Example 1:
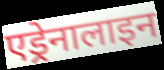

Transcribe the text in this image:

एड्रेनालाइन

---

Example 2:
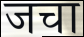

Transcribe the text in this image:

जचा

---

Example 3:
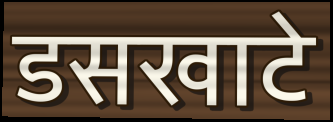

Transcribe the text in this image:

डसखाटे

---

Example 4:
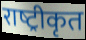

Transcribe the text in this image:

राष्ट्रीकृत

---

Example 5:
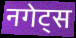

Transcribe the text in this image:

नगेट्स